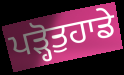
ਪੜ੍ਹੋਤੁਹਾਡੇ